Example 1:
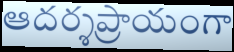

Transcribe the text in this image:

ఆదర్శప్రాయంగా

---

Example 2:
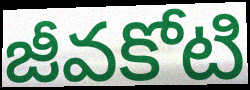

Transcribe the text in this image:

జీవకోటి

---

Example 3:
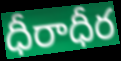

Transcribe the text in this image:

ధీరాధీర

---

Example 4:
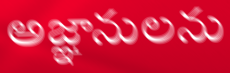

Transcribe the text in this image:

అజ్ఞానులను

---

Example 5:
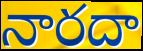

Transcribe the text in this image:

నారదా